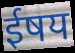
ईषय